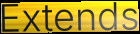
Extends